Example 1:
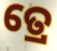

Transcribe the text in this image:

ତ୍ରେ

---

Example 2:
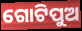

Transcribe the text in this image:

ଗୋଟିପୁଅ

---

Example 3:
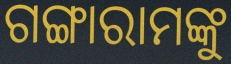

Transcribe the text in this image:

ଗଙ୍ଗାରାମଙ୍କୁ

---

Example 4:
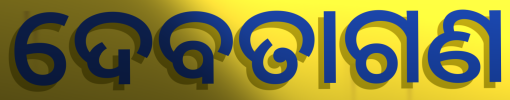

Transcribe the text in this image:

ଦେବତାଗଣ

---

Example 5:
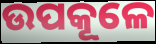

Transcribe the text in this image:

ଉପକୂଳେ